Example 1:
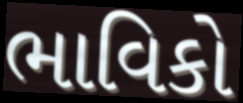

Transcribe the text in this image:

ભાવિકો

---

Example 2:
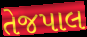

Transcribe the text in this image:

તેજપાલ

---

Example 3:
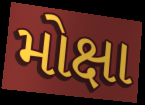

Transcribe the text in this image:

મોક્ષા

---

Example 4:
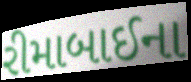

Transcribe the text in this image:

રીમાબાઈના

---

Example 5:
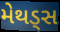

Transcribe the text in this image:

મેથડ્સ